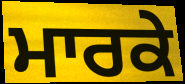
ਮਾਰਕੇ